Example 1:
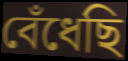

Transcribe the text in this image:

বেঁধেছি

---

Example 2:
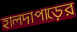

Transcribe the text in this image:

হালদাপাড়ের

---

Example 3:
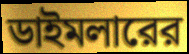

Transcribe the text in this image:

ডাইমলারের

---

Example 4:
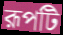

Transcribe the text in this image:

রূপটি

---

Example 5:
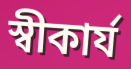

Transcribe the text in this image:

স্বীকার্য